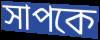
সাপকে